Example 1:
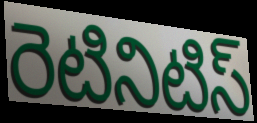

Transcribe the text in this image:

రెటినిటిస్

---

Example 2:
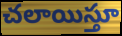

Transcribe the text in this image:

చలాయిస్తూ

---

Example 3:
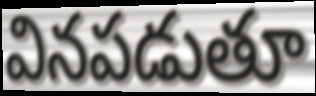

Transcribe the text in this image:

వినపడుతూ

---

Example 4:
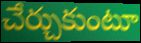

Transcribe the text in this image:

చేర్చుకుంటూ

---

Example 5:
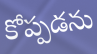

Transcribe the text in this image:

కోప్పడను